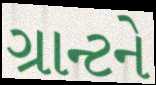
ગ્રાન્ટને